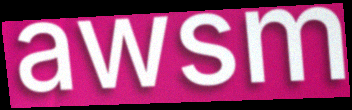
awsm